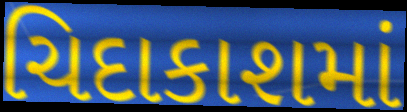
ચિદાકાશમાં